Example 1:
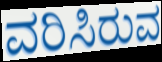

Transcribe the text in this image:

ವರಿಸಿರುವ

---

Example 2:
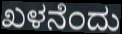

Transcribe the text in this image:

ಖಳನೆಂದು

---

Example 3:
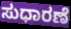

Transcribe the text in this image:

ಸುಧಾರಣೆ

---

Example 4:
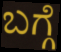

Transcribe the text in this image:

ಬಗ್ಗೆ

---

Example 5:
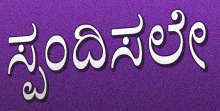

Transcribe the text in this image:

ಸ್ಪಂದಿಸಲೇ